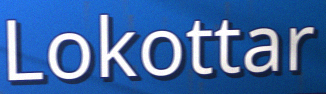
Lokottar